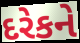
દરેકને